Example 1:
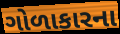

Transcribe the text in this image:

ગોળાકારના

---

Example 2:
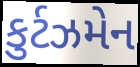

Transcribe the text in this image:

કુર્ટઝમેન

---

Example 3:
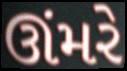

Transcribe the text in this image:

ઊંમરે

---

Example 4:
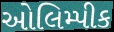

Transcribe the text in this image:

ઓલિમ્પીક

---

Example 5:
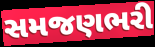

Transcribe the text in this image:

સમજણભરી